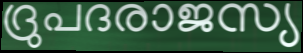
ദ്രുപദരാജസ്യ